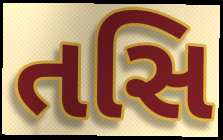
તસિ